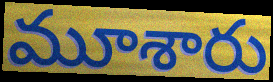
మూశారు